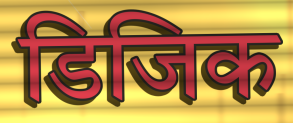
डिजिक